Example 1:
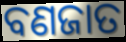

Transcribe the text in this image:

ବଣଜାତ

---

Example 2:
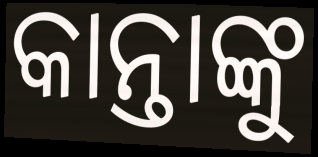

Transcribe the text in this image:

କାନ୍ତାଙ୍କୁ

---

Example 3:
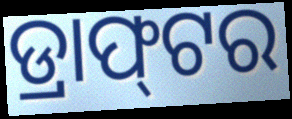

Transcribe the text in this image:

ଡ୍ରାଫ୍‌ଟର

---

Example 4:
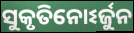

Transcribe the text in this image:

ସୁକୃତିନୋଽର୍ଜୁନ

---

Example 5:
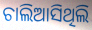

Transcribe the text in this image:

ଚାଲିଆସିଥିଲି